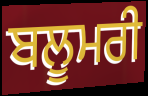
ਬਲੂਮਰੀ